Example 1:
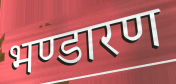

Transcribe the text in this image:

भण्डारण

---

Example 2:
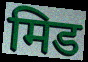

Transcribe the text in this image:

मिड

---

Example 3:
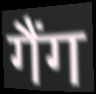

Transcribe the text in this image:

गैंग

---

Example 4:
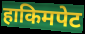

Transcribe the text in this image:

हाकिमपेट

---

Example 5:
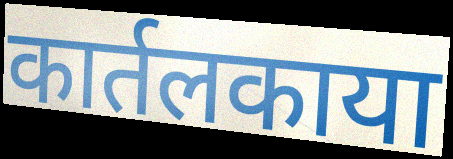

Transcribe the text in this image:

कार्तलकाया